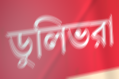
ডুলিভরা